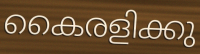
കൈരളിക്കു